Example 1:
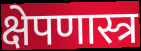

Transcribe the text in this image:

क्षेपणास्त्र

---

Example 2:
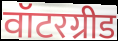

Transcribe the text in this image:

वॉटरग्रीड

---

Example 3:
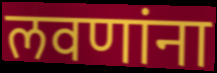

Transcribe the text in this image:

लवणांना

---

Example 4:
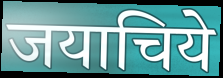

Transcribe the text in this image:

जयाचिये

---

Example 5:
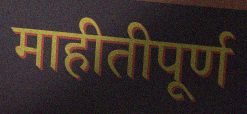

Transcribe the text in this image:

माहीतीपूर्ण